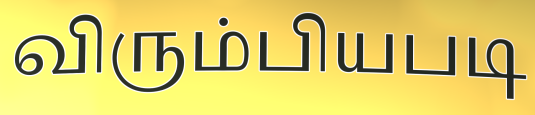
விரும்பியபடி